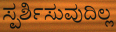
ಸ್ಪರ್ಶಿಸುವುದಿಲ್ಲ